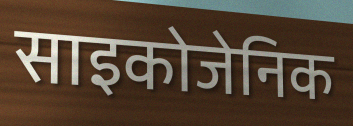
साइकोजेनिक